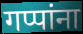
गप्पांना